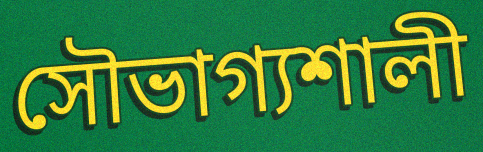
সৌভাগ্যশালী